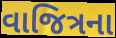
વાજિત્રના